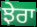
ਝੇਰਾ